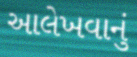
આલેખવાનું